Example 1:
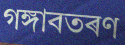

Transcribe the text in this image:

গঙ্গাবতৰণ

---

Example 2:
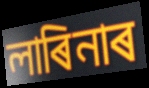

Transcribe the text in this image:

লাৰিনাৰ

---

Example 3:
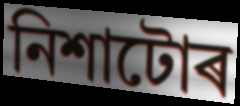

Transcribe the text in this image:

নিশাটোৰ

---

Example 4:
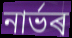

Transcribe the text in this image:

নাৰ্ভৰ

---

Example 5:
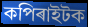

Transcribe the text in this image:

কপিৰাইটক